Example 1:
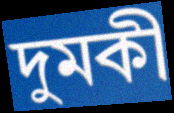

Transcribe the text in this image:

দুমকী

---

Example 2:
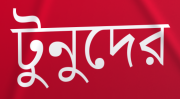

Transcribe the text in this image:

টুনুদের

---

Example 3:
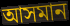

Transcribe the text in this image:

আসমান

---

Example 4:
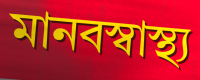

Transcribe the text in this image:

মানবস্বাস্থ্য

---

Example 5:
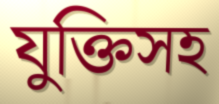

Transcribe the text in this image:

যুক্তিসহ